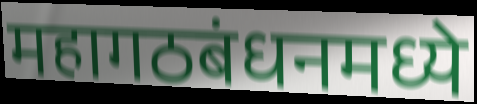
महागठबंधनमध्ये